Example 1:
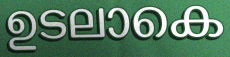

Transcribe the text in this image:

ഉടലാകെ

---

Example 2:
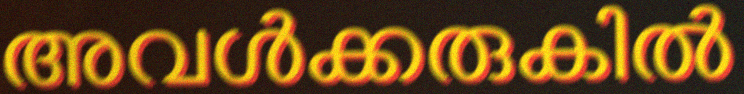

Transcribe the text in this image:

അവൾക്കരുകിൽ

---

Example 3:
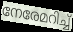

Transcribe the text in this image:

നേരേമറിച്ച്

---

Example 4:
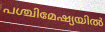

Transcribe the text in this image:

പശ്ചിമേഷ്യയിൽ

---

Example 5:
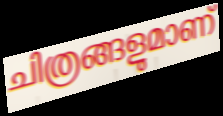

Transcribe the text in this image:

ചിത്രങ്ങളുമാണ്